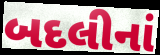
બદલીનાં